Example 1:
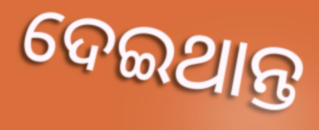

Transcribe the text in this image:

ଦେଇଥାନ୍ତ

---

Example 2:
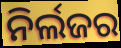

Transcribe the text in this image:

ନିର୍ଲଜର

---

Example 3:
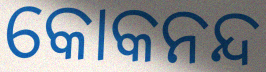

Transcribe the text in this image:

କୋକନନ୍ଦ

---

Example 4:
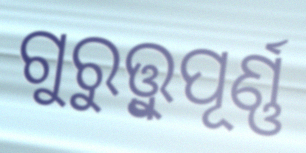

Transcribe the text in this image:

ଗୁରୁତ୍ତ୍ୱୁପୂର୍ଣ୍ଣ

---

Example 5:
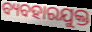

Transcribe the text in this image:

ବ୍ୟବହାରଯୁକ୍ତ